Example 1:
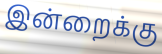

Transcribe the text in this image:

இன்றைக்கு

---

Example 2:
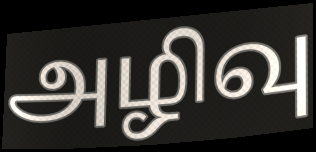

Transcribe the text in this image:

அழிவு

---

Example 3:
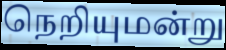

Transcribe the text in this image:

நெறியுமன்று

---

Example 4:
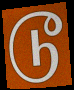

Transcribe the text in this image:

டூ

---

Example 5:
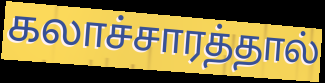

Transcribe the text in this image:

கலாச்சாரத்தால்